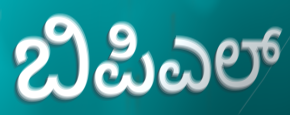
ಬಿಪಿಎಲ್